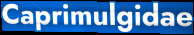
Caprimulgidae